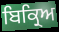
ਬਿਕ੍ਰਿਅ